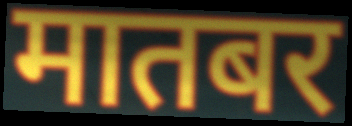
मातबर